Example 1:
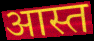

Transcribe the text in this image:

आस्त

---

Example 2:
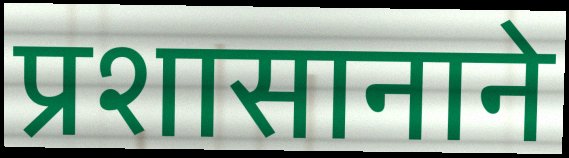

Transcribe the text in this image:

प्रशासानाने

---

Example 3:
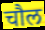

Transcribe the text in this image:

चौल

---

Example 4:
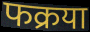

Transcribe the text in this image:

फक्रया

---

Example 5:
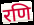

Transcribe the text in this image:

रणि